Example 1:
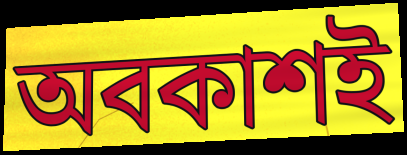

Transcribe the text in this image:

অবকাশই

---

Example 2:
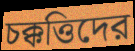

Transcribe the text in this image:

চক্কত্তিদের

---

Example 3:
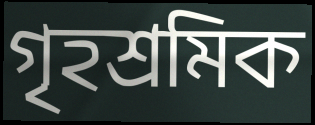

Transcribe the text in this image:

গৃহশ্রমিক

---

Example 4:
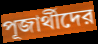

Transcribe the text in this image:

পূজার্থীদের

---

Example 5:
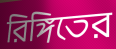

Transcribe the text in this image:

রিঙ্গিতের